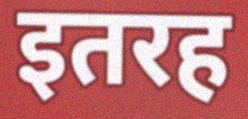
इतरह